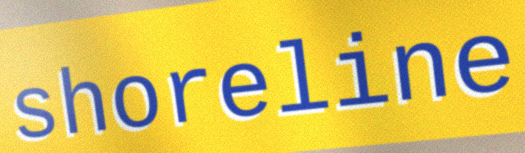
shoreline